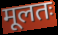
मूलतः